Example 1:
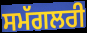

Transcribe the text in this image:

ਸਮੱਗਲਰੀ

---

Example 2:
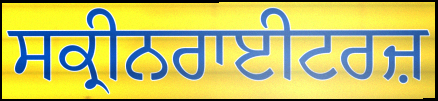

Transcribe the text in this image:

ਸਕ੍ਰੀਨਰਾਈਟਰਜ਼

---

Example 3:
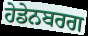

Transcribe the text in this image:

ਹੇਡੇਨਬਰਗ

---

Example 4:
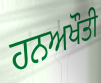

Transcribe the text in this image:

ਹਨਅਖੌਤੀ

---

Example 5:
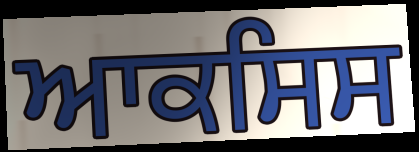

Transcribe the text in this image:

ਆਕਸਿਸ